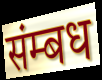
संम्बध